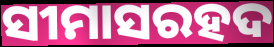
ସୀମାସରହଦ